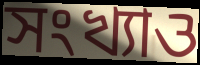
সংখ্যাও